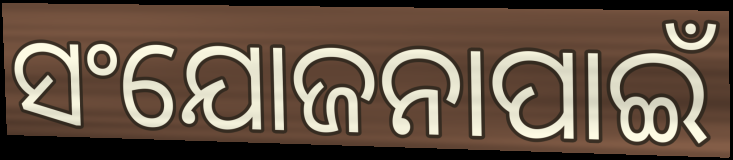
ସଂଯୋଜନାପାଇଁ